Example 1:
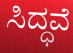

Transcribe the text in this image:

ಸಿದ್ಧವೆ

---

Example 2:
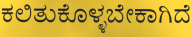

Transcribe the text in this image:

ಕಲಿತುಕೊಳ್ಳಬೇಕಾಗಿದೆ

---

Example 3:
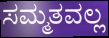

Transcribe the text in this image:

ಸಮ್ಮತವಲ್ಲ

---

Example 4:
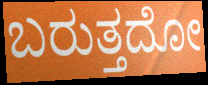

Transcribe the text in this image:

ಬರುತ್ತದೋ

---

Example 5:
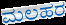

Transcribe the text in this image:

ಮಲಹರ